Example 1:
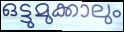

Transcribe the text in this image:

ഒട്ടുമുക്കാലും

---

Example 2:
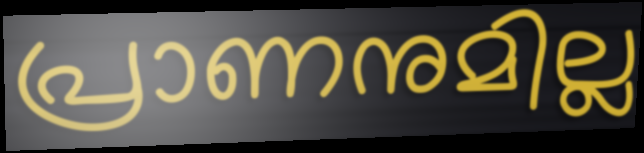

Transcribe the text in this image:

പ്രാണനുമില്ല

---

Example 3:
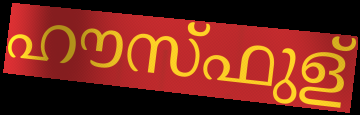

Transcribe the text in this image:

ഹൗസ്ഫുള്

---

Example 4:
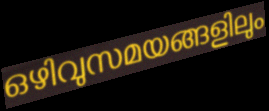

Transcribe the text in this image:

ഒഴിവുസമയങ്ങളിലും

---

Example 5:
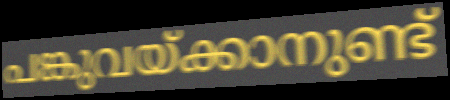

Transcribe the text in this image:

പങ്കുവയ്ക്കാനുണ്ട്